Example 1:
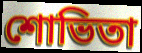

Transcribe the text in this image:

শোভিতা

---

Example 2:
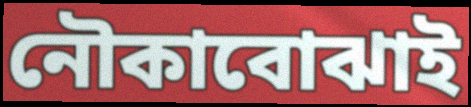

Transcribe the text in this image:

নৌকাবোঝাই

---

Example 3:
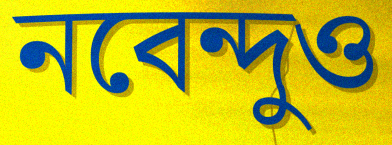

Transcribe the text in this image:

নবেন্দুও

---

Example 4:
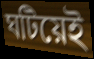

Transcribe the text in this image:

ঘটিয়েই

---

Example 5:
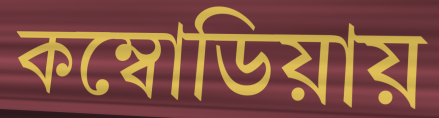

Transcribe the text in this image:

কম্বোডিয়ায়